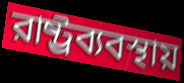
রাষ্ট্রব্যবস্থায়